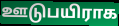
ஊடுபயிராக